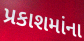
પ્રકાશમાંના